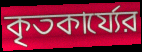
কৃতকার্য্যের